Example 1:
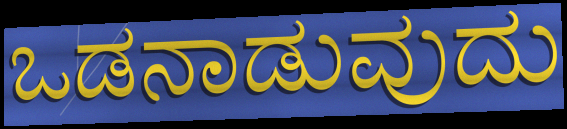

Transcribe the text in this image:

ಒಡನಾಡುವುದು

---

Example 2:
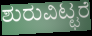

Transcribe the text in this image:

ಶುರುವಿಟ್ಟರೆ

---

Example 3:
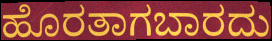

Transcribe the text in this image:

ಹೊರತಾಗಬಾರದು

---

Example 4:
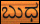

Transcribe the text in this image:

ಬುಧ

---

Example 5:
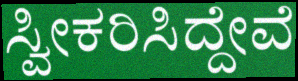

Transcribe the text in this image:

ಸ್ವೀಕರಿಸಿದ್ದೇವೆ